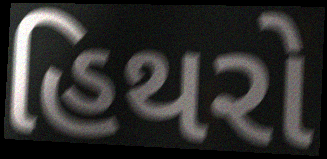
હિથરો